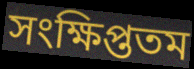
সংক্ষিপ্ততম